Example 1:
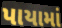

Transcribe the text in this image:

પાયામાં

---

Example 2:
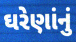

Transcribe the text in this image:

ઘરેણાંનું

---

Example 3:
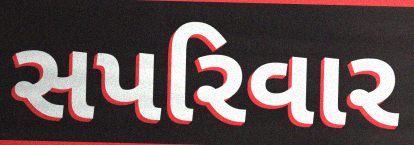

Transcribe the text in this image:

સપરિવાર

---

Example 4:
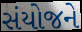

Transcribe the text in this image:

સંયોજને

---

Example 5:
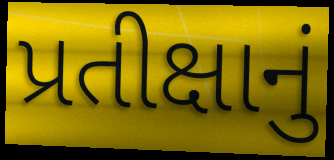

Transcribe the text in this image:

પ્રતીક્ષાનું